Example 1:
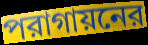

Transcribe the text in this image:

পরাগায়নের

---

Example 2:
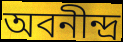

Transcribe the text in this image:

অবনীন্দ্র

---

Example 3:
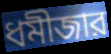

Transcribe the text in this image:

ধমীজার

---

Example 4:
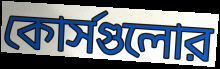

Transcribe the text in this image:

কোর্সগুলোর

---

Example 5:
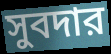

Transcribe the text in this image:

সুবদার